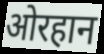
ओरहान